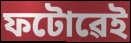
ফটোৱেই